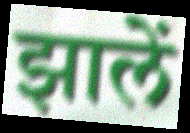
झालें